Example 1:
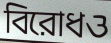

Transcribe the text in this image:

বিরোধও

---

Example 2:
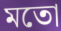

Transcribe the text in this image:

মতো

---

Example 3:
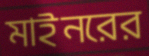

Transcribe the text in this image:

মাইনরের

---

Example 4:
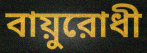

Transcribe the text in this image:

বায়ুরোধী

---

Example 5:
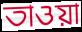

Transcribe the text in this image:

তাওয়া